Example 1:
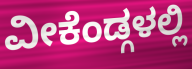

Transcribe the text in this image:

ವೀಕೆಂಡ್ಗಳಲ್ಲಿ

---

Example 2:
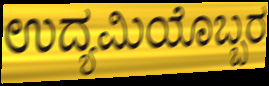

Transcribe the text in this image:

ಉದ್ಯಮಿಯೊಬ್ಬರ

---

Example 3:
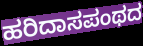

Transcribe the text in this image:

ಹರಿದಾಸಪಂಥದ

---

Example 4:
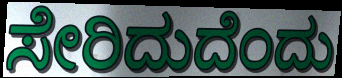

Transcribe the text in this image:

ಸೇರಿದುದೆಂದು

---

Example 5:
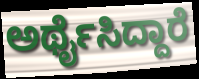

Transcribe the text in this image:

ಅರ್ಥೈಸಿದ್ದಾರೆ